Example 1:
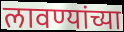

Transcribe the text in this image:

लावण्यांच्या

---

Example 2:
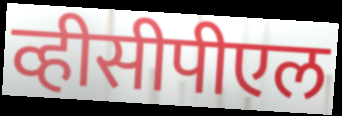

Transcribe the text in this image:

व्हीसीपीएल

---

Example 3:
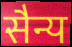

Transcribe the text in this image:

सैन्‍य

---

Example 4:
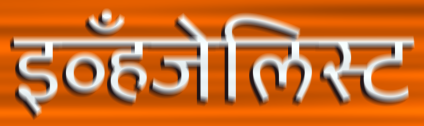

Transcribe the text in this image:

इव्हँजेलिस्ट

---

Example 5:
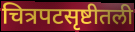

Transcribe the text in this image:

चित्रपटसृष्टीतली